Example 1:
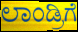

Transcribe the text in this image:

ಲಾಂಡ್ರಿಗೆ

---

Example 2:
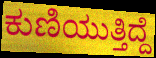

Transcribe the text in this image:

ಕುಣಿಯುತ್ತಿದ್ದೆ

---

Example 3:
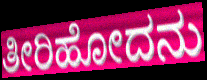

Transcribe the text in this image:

ತೀರಿಹೋದನು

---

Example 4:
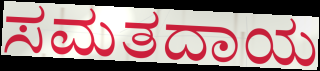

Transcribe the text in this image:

ಸಮತದಾಯ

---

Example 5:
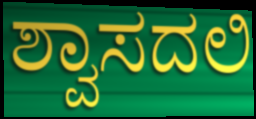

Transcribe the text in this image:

ಶ್ವಾಸದಲಿ